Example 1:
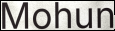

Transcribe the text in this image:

Mohun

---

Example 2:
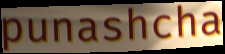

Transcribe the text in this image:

punashcha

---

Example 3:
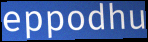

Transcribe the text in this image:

eppodhu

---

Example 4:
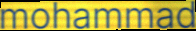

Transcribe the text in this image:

mohammad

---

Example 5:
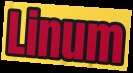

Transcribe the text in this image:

Linum